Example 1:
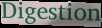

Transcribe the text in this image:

Digestion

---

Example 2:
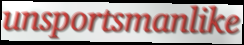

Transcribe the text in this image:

unsportsmanlike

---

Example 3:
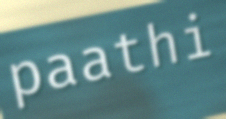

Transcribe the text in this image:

paathi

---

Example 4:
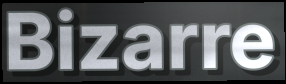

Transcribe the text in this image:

Bizarre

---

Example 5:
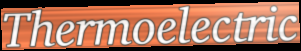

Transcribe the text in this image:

Thermoelectric